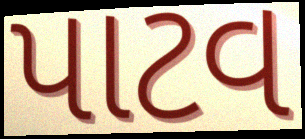
પાટવ